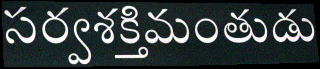
సర్వశక్తిమంతుడు